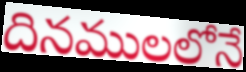
దినములలోనే